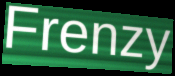
Frenzy